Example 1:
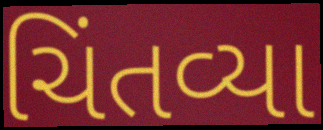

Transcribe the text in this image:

ચિંતવ્યા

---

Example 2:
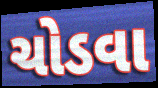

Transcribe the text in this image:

ચોડવા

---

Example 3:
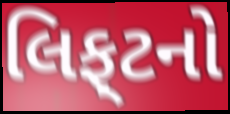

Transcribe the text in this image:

લિફ્‌ટનો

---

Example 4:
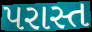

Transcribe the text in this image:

પરાસ્ત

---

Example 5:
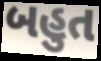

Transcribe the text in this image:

બહુત